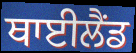
ਥਾਈਲੈਂਡ